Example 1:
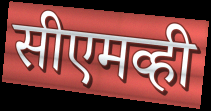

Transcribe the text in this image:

सीएमव्ही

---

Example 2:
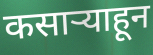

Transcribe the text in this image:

कसाऱ्याहून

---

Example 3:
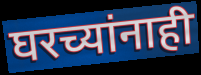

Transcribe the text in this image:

घरच्यांनाही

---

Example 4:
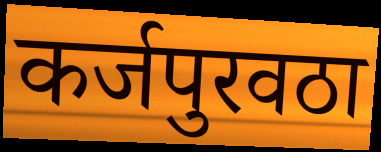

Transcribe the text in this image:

कर्जपुरवठा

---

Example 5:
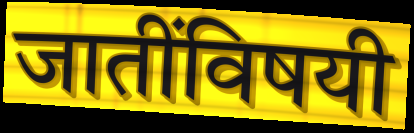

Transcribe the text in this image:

जातींविषयी